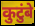
कुटुंबे